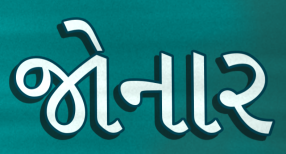
જોનાર